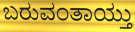
ಬರುವಂತಾಯ್ತು